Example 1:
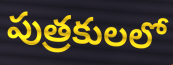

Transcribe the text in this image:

పుత్రకులలో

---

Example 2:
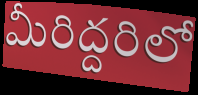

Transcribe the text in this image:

మీరిద్దరిలో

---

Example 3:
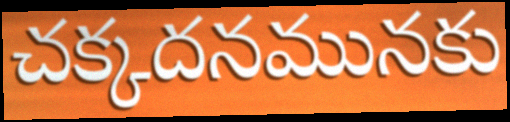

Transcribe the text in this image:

చక్కదనమునకు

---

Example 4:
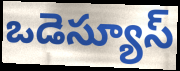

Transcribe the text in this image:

ఒడెస్యూస్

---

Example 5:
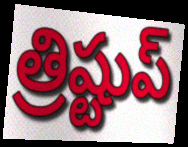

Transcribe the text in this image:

త్రిష్టుప్